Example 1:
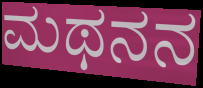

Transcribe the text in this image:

ಮಥನನ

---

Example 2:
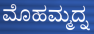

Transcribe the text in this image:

ಮೊಹಮ್ಮದ್ನ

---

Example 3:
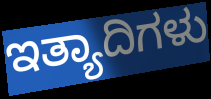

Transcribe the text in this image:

ಇತ್ಯಾದಿಗಳು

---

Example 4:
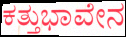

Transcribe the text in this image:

ಕತ್ತುಭಾವೇನ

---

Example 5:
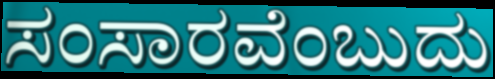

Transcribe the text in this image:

ಸಂಸಾರವೆಂಬುದು